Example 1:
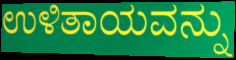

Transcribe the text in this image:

ಉಳಿತಾಯವನ್ನು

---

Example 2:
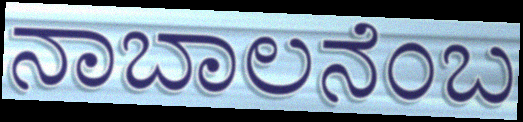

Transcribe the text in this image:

ನಾಬಾಲನೆಂಬ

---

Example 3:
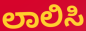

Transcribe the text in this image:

ಲಾಲಿಸಿ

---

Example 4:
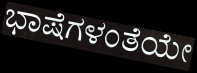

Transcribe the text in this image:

ಭಾಷೆಗಳಂತೆಯೇ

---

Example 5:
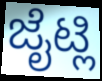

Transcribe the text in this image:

ಜೈಟ್ಲಿ